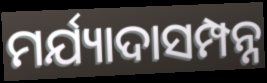
ମର୍ଯ୍ୟାଦାସମ୍ପନ୍ନ